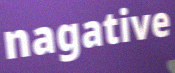
nagative